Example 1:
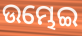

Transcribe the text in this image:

ଉମ୍ଭେଇ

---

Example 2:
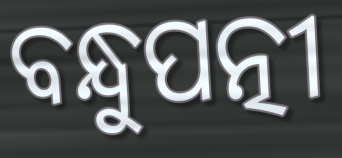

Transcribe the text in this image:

ବନ୍ଧୁପତ୍ନୀ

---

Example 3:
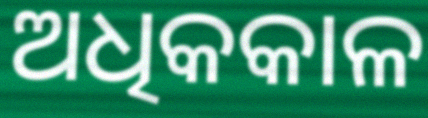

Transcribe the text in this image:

ଅଧିକକାଳ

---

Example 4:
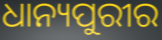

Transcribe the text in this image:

ଧାନ୍ୟପୁରୀର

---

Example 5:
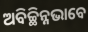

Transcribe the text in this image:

ଅବିଚ୍ଛିନ୍ନଭାବେ